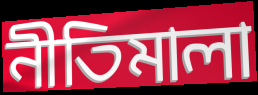
নীতিমালা